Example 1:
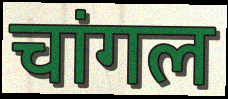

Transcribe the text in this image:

चांगल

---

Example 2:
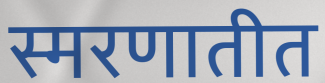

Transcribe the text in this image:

स्मरणातीत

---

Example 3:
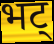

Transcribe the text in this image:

भट्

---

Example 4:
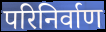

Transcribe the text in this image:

परिनिर्वाण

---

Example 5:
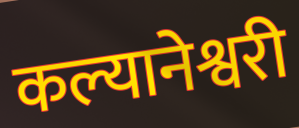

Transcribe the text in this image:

कल्यानेश्वरी